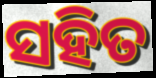
ସହିତ